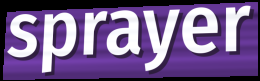
sprayer